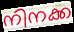
നിനക്ക